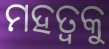
ମହତ୍ଵକୁ